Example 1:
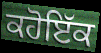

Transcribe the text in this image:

ਕਹੋਇੱਕ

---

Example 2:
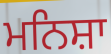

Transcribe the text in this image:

ਮਨਿਸ਼ਾ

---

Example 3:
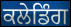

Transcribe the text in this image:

ਕਲੇਡਿੰਗ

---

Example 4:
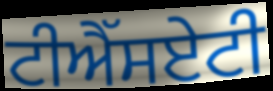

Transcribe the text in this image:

ਟੀਐੱਸਏਟੀ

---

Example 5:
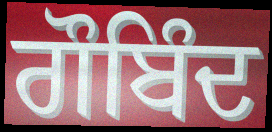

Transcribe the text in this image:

ਗੌਬਿੰਦ